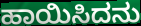
ಹಾಯಿಸಿದನು